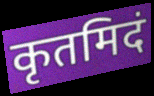
कृतमिदं